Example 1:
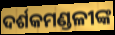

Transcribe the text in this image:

ଦର୍ଶକମଣ୍ଡଳୀଙ୍କ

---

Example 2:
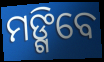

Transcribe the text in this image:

ମଙ୍ଗିବେ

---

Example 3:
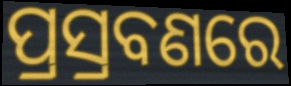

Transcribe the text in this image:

ପ୍ରସ୍ରବଣରେ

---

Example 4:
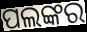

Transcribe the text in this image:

ପଲଙ୍କର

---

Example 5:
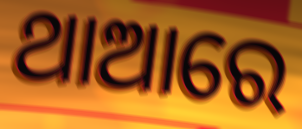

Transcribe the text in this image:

ଥାଆରେ